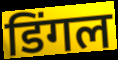
डिंगल